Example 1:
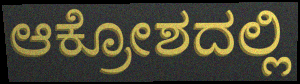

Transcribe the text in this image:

ಆಕ್ರೋಶದಲ್ಲಿ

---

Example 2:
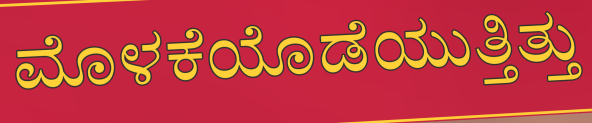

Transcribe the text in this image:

ಮೊಳಕೆಯೊಡೆಯುತ್ತಿತ್ತು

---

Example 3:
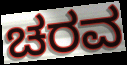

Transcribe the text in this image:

ಚರವ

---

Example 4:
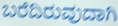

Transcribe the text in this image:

ಬರೆದಿರುವುದಾಗಿ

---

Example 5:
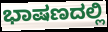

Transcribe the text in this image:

ಭಾಷಣದಲ್ಲಿ